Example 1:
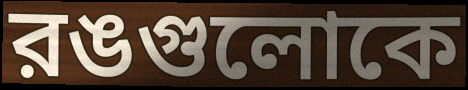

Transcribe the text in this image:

রঙগুলোকে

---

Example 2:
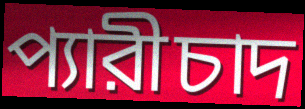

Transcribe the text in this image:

প্যারীচাদ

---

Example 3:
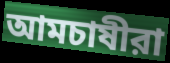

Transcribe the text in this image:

আমচাষীরা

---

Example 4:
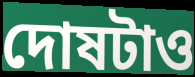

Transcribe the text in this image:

দোষটাও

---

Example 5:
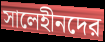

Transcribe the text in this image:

সালেহীনদের